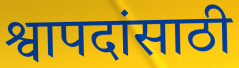
श्वापदांसाठी